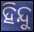
ହିନ୍ଦୁ